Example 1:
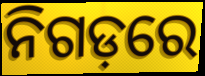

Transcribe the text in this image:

ନିଗଡ଼ରେ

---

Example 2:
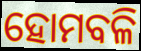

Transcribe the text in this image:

ହୋମବଳି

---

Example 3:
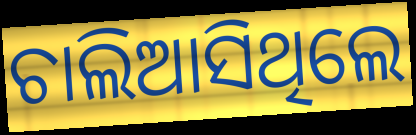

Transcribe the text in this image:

ଚାଲିଆସିଥିଲେ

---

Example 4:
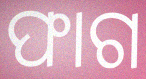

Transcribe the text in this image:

ଫାଗ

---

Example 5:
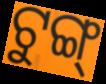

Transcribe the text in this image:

ଟୁଙ୍ଗ୍